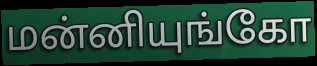
மன்னியுங்கோ